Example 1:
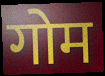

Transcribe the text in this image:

गोम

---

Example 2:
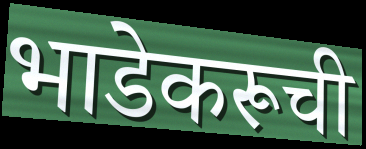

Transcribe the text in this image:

भाडेकरूची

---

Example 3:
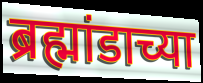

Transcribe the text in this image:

ब्रह्मांडाच्या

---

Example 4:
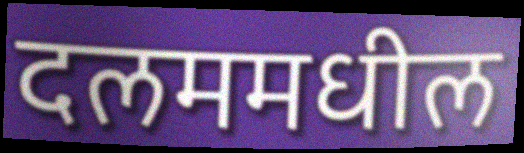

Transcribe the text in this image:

दलममधील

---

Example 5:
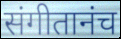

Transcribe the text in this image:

संगीतानंच